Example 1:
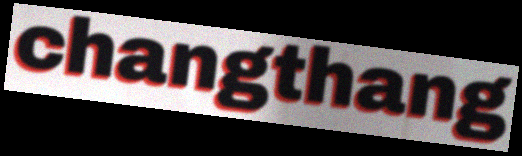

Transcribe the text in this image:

changthang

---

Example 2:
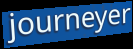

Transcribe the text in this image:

journeyer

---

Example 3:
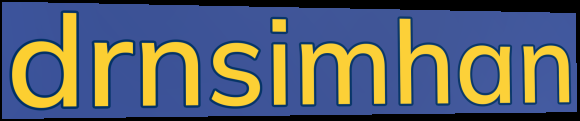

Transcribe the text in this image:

drnsimhan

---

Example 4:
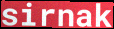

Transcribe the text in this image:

sirnak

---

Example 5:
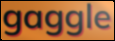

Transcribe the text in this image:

gaggle